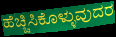
ಹೆಚ್ಚಿಸಿಕೊಳ್ಳುವುದರ